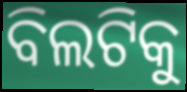
ବିଲଟିକୁ